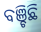
ବଞ୍ଚିଛି